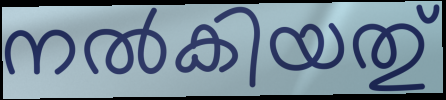
നൽകിയതു്